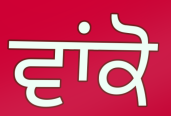
ਵਾਂਕੋ